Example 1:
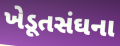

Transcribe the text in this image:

ખેડૂતસંઘના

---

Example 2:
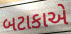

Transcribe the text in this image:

બટાકાએ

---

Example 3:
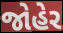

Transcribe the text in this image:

જોહેર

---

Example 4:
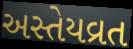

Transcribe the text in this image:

અસ્તેયવ્રત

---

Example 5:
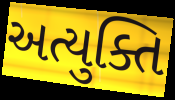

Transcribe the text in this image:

અત્યુક્તિ